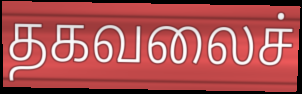
தகவலைச்